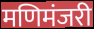
मणिमंजरी